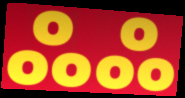
ஃஃ